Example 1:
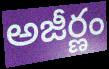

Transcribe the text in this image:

అజీర్ణం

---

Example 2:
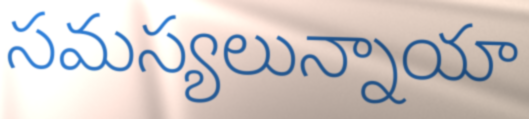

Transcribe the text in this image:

సమస్యలున్నాయా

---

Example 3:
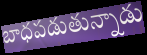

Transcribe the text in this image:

బాధపడుతున్నాడు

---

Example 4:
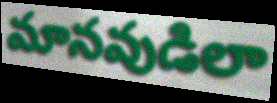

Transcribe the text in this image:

మానవుడిలా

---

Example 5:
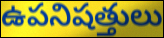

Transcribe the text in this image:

ఉపనిషత్తులు